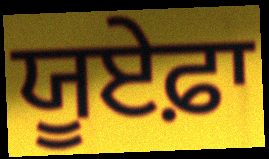
ਯੂਏਫ਼ਾ